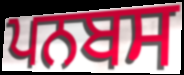
ਪਨਬਸ